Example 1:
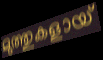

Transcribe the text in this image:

മുത്തുകളായ്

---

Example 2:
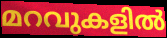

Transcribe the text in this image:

മറവുകളിൽ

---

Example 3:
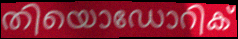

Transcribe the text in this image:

തിയൊഡോറിക്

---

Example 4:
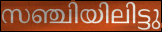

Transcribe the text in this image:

സഞ്ചിയിലിട്ടു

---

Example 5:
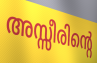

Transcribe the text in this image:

അസ്സീരിന്റെ